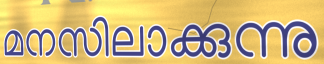
മനസിലാക്കുന്നു